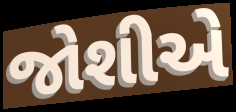
જોશીએ